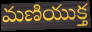
మణియుక్త